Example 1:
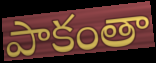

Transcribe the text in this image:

పాకంతా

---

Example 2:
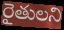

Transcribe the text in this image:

రైతులని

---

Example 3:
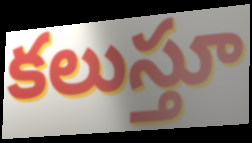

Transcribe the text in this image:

కలుస్తూ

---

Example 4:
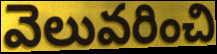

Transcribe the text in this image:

వెలువరించి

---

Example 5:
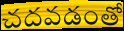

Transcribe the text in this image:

చదవడంతో